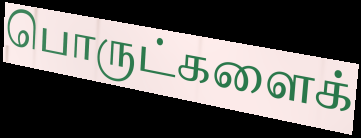
பொருட்களைக்